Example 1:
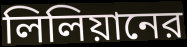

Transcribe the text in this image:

লিলিয়ানের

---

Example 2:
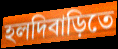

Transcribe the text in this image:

হলদিবাড়িতে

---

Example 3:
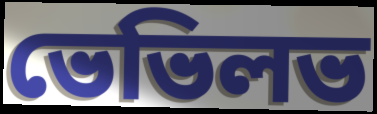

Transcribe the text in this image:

ভেভিলভ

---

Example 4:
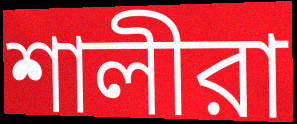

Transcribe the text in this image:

শালীরা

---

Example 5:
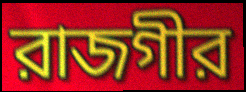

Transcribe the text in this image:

রাজগীর